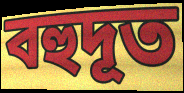
বহুদূত